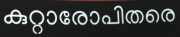
കുറ്റാരോപിതരെ